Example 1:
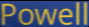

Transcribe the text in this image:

Powell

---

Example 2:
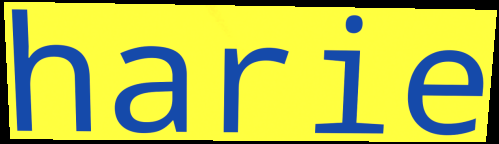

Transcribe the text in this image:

harie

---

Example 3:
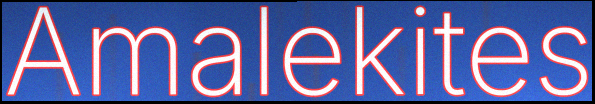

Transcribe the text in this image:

Amalekites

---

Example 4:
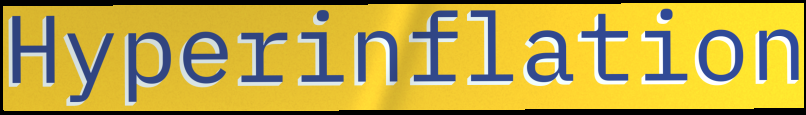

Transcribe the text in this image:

Hyperinflation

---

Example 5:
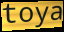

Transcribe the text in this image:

toya